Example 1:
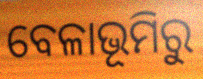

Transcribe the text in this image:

ବେଳାଭୂମିରୁ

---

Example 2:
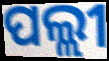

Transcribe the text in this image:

ପଲ୍ଲୀ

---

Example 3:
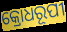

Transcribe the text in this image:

କ୍ରୋଧରୂପୀ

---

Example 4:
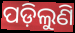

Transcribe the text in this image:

ପଡ଼ିଲୁଣି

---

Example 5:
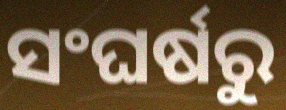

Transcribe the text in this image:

ସଂଘର୍ଷରୁ